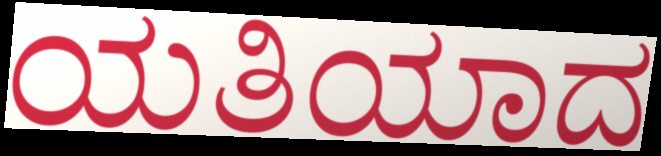
ಯತಿಯಾದ